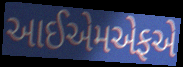
આઈએમએફએ